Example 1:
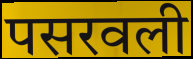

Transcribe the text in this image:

पसरवली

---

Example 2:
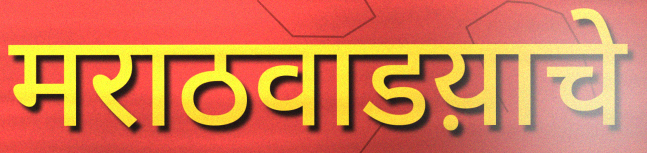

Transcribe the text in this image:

मराठवाडय़ाचे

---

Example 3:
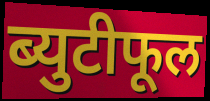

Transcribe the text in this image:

ब्युटीफूल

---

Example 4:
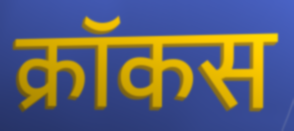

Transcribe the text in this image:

क्रॉकस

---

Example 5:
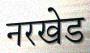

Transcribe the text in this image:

नरखेड